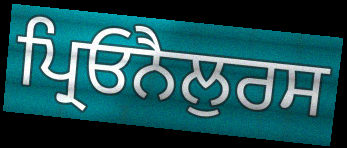
ਪ੍ਰਿਓਨੈਲੁਰਸ